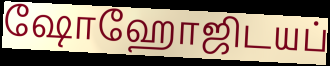
ஷோஹோஜிடயப்